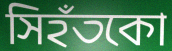
সিহঁতকো